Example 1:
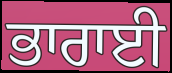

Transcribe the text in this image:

ਭਾਰਾਈ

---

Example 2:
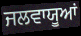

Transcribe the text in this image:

ਜਲਵਾਯੂਆਂ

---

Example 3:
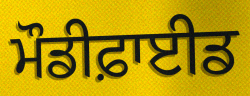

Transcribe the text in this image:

ਮੌਡੀਫ਼ਾਈਡ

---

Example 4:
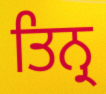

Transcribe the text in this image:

ਤਿਨ੍ਰ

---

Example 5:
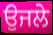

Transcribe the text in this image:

ਉਜਲੇ